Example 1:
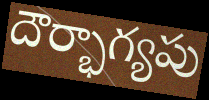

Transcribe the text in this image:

దౌర్భాగ్యపు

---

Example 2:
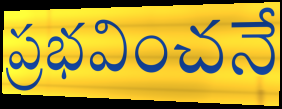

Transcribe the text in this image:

ప్రభవించనే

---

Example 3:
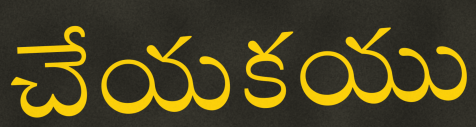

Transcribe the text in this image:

చేయకయు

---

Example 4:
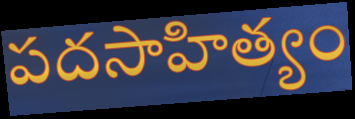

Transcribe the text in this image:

పదసాహిత్యం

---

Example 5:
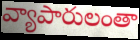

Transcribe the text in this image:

వ్యాపారులంతా